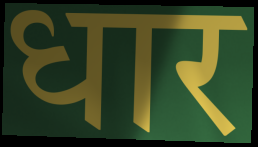
धार